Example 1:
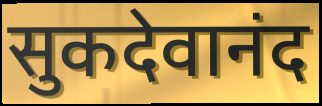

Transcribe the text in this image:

सुकदेवानंद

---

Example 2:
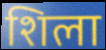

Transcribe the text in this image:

शिला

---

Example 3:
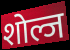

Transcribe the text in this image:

शोल्ज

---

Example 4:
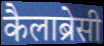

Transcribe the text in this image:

कैलाब्रेसी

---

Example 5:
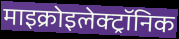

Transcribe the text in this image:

माइक्रोइलेक्ट्रॉनिक